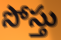
సోస్తు